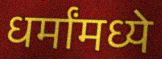
धर्मांमध्ये